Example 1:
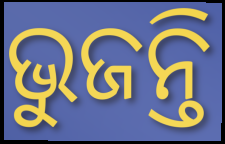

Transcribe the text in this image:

ଭୁଜନ୍ତି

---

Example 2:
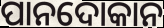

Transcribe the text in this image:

ପାନଦୋକାନ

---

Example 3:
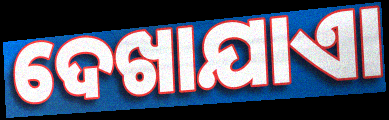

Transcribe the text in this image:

ଦେଖାଯାଏା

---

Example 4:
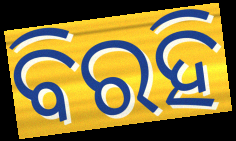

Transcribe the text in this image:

ବିରହି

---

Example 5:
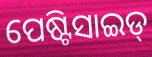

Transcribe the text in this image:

ପେଷ୍ଟିସାଇଡ୍